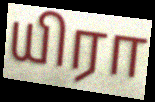
யிரா